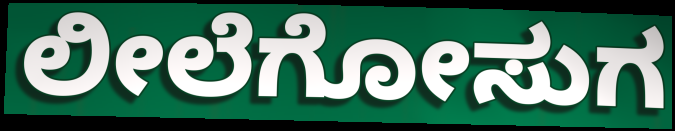
ಲೀಲೆಗೋಸುಗ